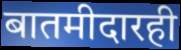
बातमीदारही